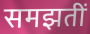
समझतीं